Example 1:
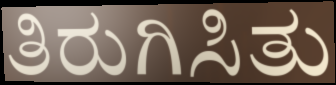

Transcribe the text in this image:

ತಿರುಗಿಸಿತು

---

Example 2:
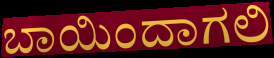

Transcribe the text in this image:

ಬಾಯಿಂದಾಗಲಿ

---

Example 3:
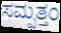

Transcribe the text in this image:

ಸಮ್ಪತ್ತಂ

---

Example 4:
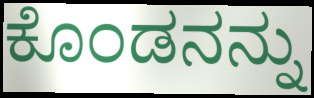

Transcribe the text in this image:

ಕೊಂಡನನ್ನು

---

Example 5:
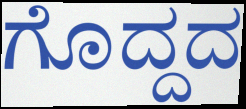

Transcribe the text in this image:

ಗೊದ್ದದ